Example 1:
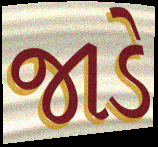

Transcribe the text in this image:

જાડે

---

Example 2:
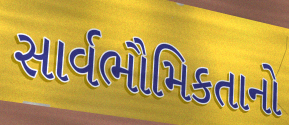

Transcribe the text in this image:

સાર્વભૌમિકતાનો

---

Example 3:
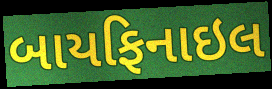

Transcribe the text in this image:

બાયફિનાઇલ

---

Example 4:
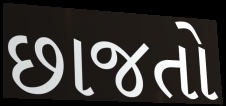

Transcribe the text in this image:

છાજતો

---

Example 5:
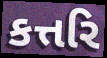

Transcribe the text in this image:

કત્તરિ